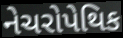
નેચરોપેથિક